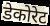
डेकोरेट